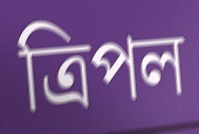
ত্রিপল